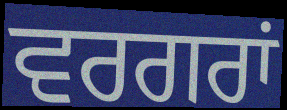
ਵਰਗਰਾਂ